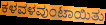
ಕಳವಳವುಂಟಾಯಿತು